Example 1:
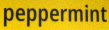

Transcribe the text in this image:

peppermint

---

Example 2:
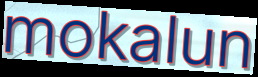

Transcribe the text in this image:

mokalun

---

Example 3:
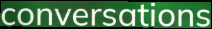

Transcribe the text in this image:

conversations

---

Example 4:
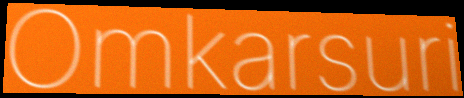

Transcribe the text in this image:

Omkarsuri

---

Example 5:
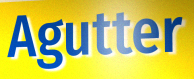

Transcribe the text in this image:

Agutter